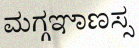
ಮಗ್ಗಞಾಣಸ್ಸ